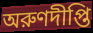
অরুণদীপ্তি